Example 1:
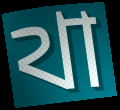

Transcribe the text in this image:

থা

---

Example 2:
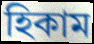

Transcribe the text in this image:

হিকাম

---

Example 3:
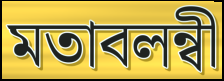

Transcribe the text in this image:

মতাবলন্বী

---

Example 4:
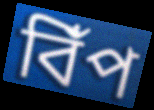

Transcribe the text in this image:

বিঁপ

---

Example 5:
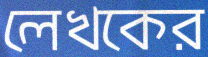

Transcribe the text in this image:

লেখকের